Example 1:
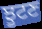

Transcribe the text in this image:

ਝੂਟਣ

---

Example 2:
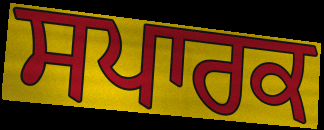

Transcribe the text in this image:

ਸਪਾਰਕ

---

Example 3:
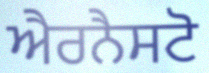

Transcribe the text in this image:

ਐਰਨੈਸਟੋ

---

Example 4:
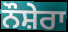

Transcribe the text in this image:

ਨੌਸ਼ੇਰਾ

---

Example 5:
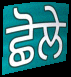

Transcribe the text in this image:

ਛੋਲੇ